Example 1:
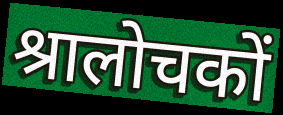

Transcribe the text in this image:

श्रालोचकों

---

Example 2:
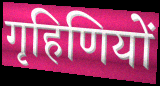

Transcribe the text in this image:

गृहिणियों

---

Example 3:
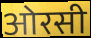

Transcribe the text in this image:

ओरसी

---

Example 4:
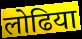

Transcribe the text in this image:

लोढिया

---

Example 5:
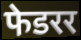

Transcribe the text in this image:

फेडरर